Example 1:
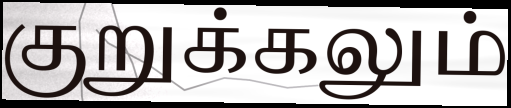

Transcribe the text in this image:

குறுக்கலும்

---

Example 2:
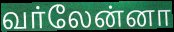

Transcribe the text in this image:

வர்லேன்னா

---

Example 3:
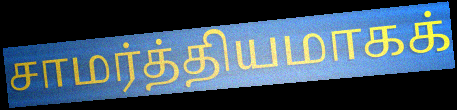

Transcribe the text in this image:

சாமர்த்தியமாகக்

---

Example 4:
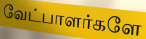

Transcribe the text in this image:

வேட்பாளர்களே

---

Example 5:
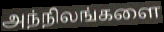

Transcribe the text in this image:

அந்நிலங்களை